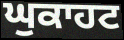
ਘੁਕਾਹਟ